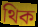
থিক